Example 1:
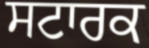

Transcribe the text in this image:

ਸਟਾਰਕ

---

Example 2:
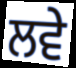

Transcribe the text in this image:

ਲਵੇ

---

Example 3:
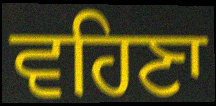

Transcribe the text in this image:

ਵਹਿਣਾ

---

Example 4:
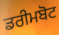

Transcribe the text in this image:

ਡਰੀਮਬੋਟ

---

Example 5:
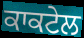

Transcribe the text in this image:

ਕਾਕਟੇਲ